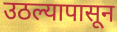
उठल्यापासून